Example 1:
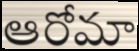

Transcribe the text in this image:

ఆరోమా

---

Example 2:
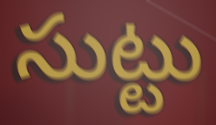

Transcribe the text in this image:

సుట్టు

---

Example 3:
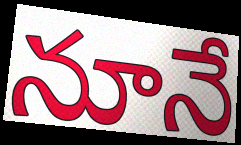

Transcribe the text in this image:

నూనే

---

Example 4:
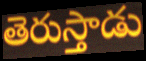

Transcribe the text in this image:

తెరుస్తాడు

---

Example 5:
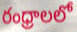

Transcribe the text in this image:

రంధ్రాలలో